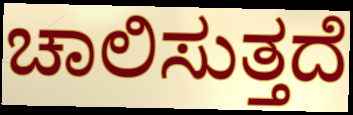
ಚಾಲಿಸುತ್ತದೆ